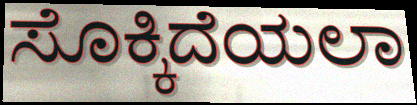
ಸೊಕ್ಕಿದೆಯಲಾ